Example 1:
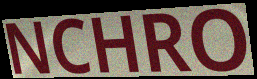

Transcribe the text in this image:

NCHRO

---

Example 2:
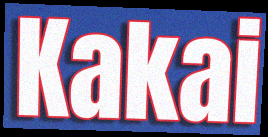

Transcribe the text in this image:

Kakai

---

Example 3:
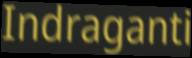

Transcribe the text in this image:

Indraganti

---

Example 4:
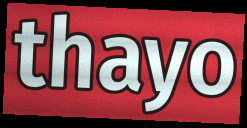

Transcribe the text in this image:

thayo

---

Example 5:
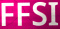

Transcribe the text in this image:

FFSI